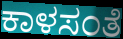
ಕಾಳಸಂತೆ